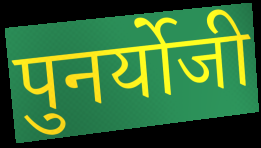
पुनर्योजी